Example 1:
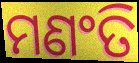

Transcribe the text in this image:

ମଣଂତି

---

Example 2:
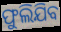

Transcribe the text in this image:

ଫୁଲିଯିବ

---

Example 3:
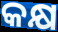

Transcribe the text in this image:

କକ୍ଷ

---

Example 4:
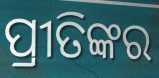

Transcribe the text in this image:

ପ୍ରୀତିଙ୍କର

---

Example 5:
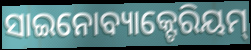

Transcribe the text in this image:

ସାଇନୋବ୍ୟାକ୍ଟେରିୟମ୍